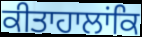
ਕੀਤਾਹਾਲਾਂਕਿ